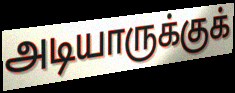
அடியாருக்குக்